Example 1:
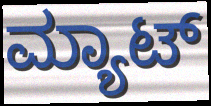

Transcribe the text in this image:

ಮ್ಯಾಟ್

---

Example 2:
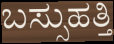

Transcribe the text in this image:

ಬಸ್ಸುಹತ್ತಿ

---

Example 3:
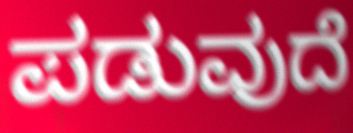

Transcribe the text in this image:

ಪಡುವುದೆ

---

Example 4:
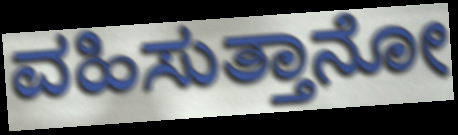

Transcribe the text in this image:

ವಹಿಸುತ್ತಾನೋ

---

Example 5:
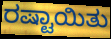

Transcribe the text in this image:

ರಷ್ಟಾಯಿತು